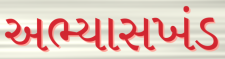
અભ્યાસખંડ